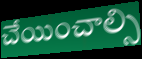
చేయించాల్సి